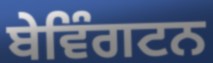
ਬੇਵਿੰਗਟਨ